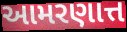
આમરણાત્ત